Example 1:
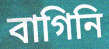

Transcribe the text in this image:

বাগিনি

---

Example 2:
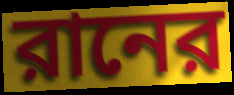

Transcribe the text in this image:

রানের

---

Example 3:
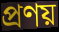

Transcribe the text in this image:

প্রণয়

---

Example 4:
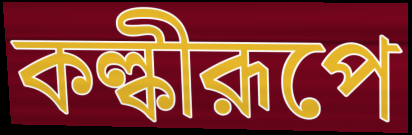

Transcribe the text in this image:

কল্কীরূপে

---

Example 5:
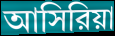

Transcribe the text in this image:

আসিরিয়া